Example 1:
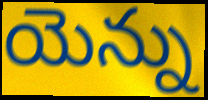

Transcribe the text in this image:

యెన్ను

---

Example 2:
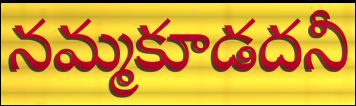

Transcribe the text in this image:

నమ్మకూడదనీ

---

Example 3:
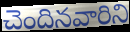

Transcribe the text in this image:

చెందినవారిని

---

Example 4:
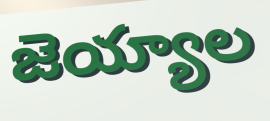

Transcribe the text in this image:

జెయ్యాల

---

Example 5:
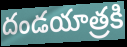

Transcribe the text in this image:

దండయాత్రకి